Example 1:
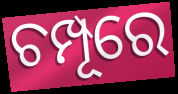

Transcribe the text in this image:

ଚମ୍ପୂରେ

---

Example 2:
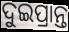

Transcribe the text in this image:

ଦୁଇପ୍ରାନ୍ତ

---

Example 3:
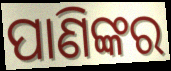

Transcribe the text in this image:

ପାଣିଙ୍କର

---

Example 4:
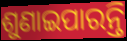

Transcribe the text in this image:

ଶୁଣାଇପାରନ୍ତି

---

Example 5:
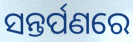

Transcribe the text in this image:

ସନ୍ତର୍ପଣରେ